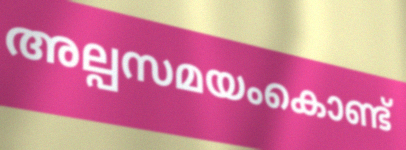
അല്പസമയംകൊണ്ട്